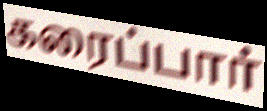
கரைப்பார்